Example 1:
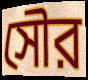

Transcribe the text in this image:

সৌর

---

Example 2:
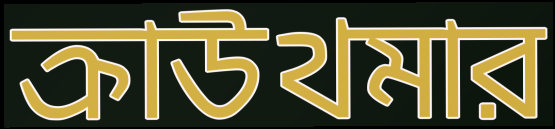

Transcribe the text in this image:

ক্রাউথমার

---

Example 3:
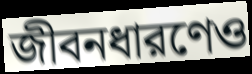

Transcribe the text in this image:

জীবনধারণেও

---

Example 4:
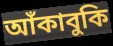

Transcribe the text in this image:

আঁকাবুকি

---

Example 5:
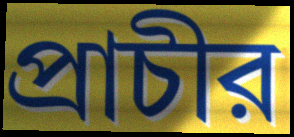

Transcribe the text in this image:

প্রাচীর